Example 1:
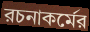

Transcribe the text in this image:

রচনাকর্মের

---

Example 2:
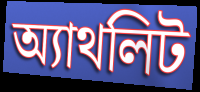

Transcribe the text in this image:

অ্যাথলিট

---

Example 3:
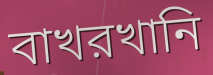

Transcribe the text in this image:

বাখরখানি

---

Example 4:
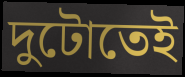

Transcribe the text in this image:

দুটোতেই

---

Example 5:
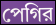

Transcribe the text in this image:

পেগির